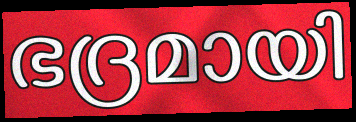
ഭദ്രമായി